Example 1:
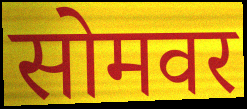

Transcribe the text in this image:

सोमवर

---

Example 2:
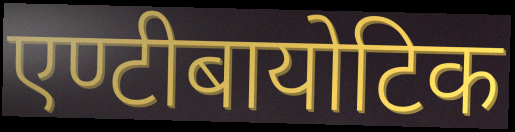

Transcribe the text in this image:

एण्टीबायोटिक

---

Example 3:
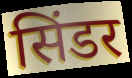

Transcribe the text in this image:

सिंडर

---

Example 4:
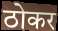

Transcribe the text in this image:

ठोकर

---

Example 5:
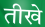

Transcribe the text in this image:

तीखे